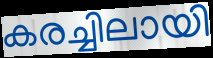
കരച്ചിലായി